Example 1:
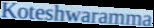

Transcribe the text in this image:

Koteshwaramma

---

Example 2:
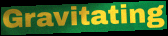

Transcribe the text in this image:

Gravitating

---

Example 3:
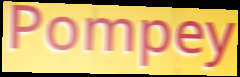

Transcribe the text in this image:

Pompey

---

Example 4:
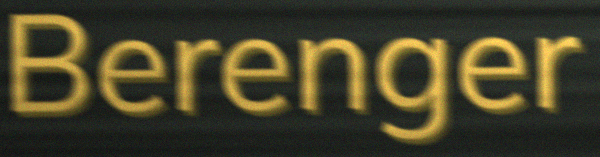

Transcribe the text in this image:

Berenger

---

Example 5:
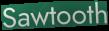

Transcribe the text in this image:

Sawtooth